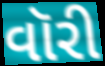
વૉરી